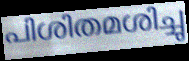
പിശിതമശിച്ചു